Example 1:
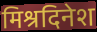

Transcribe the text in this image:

मिश्रदिनेश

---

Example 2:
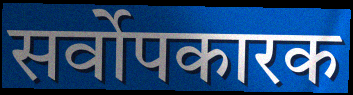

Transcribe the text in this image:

सर्वोपकारक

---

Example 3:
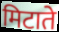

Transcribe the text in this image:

मिटाते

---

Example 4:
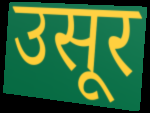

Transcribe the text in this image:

उसूर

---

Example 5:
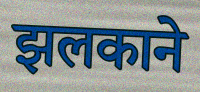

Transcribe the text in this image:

झलकाने